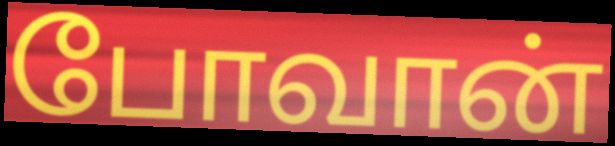
போவான்